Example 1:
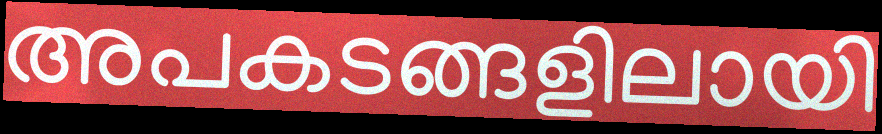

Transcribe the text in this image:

അപകടങ്ങളിലായി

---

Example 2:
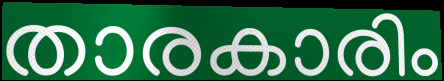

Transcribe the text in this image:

താരകാരിം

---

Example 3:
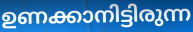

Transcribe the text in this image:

ഉണക്കാനിട്ടിരുന്ന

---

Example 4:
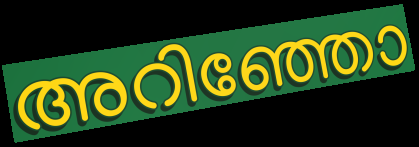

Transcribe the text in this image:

അറിഞ്ഞോ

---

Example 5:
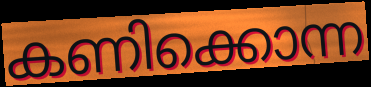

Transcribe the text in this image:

കണിക്കൊന്ന